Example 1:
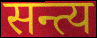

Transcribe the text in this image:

सन्त्य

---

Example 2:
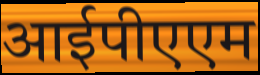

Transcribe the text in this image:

आईपीएएम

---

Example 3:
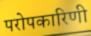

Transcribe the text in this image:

परोपकारिणी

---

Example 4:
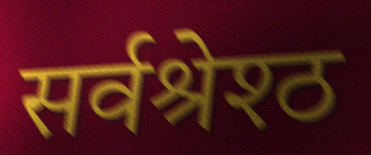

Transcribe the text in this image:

सर्वश्रेश्ठ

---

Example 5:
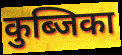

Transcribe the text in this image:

कुब्जिका